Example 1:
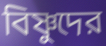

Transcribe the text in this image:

বিষ্ণুদের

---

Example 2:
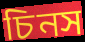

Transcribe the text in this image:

চিনস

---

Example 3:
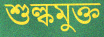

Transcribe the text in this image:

শুল্কমুক্ত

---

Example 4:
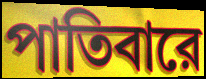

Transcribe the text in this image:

পাতিবারে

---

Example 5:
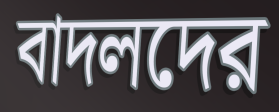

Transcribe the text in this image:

বাদলদের